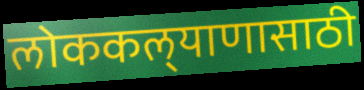
लोककल्याणासाठी